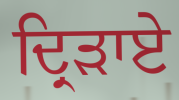
ਦ੍ਰਿੜਾਏ